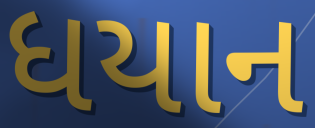
ધયાન